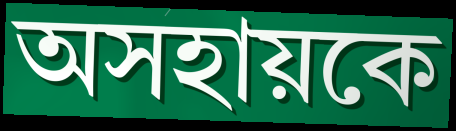
অসহায়কে